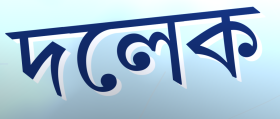
দলেক